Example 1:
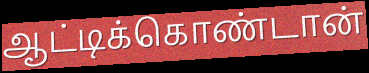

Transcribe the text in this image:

ஆட்டிக்கொண்டான்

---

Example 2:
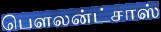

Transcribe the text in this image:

பௌலன்ட்சாஸ்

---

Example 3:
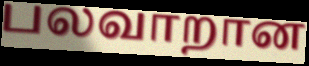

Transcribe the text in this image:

பலவாறான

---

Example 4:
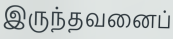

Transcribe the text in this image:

இருந்தவனைப்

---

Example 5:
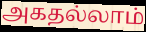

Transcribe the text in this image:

அகதல்லாம்